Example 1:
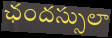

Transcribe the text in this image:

ఛందస్సులా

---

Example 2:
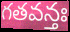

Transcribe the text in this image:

గతవన్తః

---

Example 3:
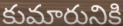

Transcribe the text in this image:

కుమారునికి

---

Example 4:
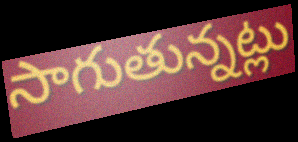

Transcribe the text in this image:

సాగుతున్నట్లు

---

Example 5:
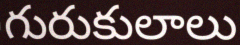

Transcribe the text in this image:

గురుకులాలు